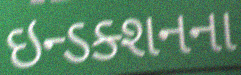
ઇન્ડક્શનના